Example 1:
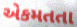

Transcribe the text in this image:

એકમતતા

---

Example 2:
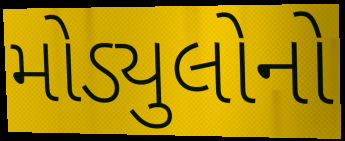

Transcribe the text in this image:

મોડ્યુલોનો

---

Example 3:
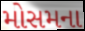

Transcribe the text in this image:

મોસમના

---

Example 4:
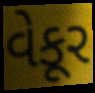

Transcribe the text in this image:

વેકૂર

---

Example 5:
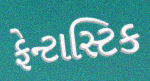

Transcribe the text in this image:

ફેન્ટાસ્ટિક